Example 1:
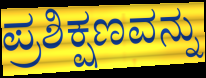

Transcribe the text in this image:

ಪ್ರಶಿಕ್ಷಣವನ್ನು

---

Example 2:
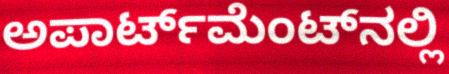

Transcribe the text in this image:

ಅಪಾರ್ಟ್‌ಮೆಂಟ್‌ನಲ್ಲಿ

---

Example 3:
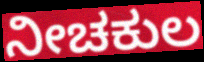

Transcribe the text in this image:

ನೀಚಕುಲ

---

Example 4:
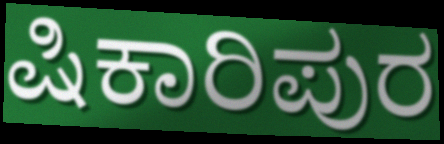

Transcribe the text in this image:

ಷಿಕಾರಿಪುರ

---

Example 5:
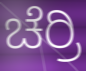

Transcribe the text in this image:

ಚೆರ್ರಿ